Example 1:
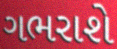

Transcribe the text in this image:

ગભરાશે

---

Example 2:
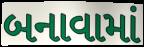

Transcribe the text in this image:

બનાવામાં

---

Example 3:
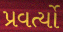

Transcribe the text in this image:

પ્રવર્ત્યો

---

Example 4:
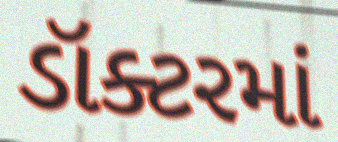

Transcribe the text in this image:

ડૉક્ટરમાં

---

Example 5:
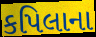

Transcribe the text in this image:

કપિલાના